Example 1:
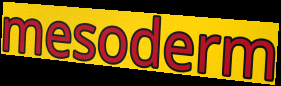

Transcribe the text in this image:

mesoderm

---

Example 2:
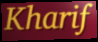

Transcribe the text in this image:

Kharif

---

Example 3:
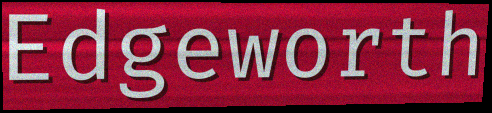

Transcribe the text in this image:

Edgeworth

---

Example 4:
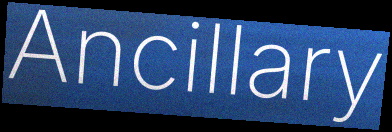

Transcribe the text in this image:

Ancillary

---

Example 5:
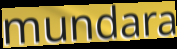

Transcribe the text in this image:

mundara